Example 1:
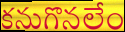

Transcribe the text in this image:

కనుగొనలేం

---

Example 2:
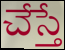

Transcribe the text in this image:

చేస్తే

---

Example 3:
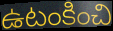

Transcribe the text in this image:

ఉటంకించి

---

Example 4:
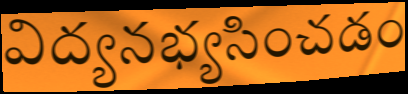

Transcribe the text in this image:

విద్యనభ్యసించడం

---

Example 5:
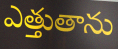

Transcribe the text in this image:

ఎత్తుతాను